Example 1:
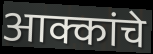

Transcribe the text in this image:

आक्कांचे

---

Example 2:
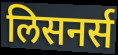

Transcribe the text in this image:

लिसनर्स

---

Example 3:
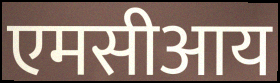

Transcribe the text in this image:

एमसीआय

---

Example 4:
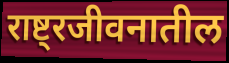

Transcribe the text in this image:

राष्ट्रजीवनातील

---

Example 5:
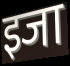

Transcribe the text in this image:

इजा